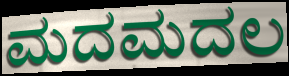
ಮದಮದಲ